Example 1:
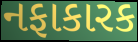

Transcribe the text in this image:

નફાકારક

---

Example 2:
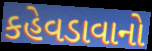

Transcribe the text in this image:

કહેવડાવાનો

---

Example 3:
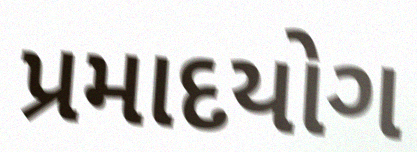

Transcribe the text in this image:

પ્રમાદયોગ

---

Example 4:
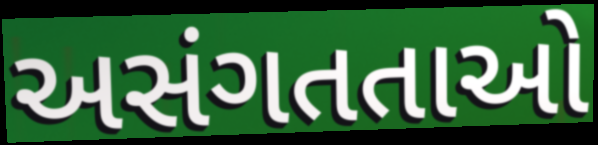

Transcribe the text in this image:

અસંગતતાઓ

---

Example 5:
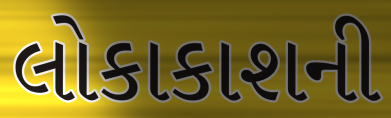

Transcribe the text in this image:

લોકાકાશની